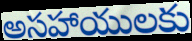
అసహాయులకు